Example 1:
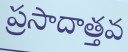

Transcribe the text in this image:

ప్రసాదాత్తవ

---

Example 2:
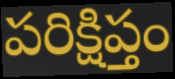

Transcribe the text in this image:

పరిక్షిప్తం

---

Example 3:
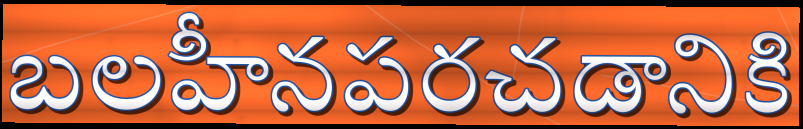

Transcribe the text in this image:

బలహీనపరచడానికి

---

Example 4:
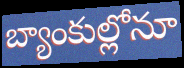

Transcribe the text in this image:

బ్యాంకుల్లోనూ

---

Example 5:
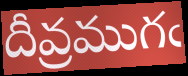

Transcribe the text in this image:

దీవ్రముగఁ